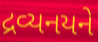
દ્રવ્યનયને